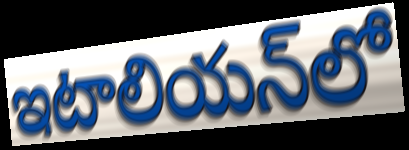
ఇటాలియన్‌లో